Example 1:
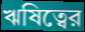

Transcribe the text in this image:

ঋষিত্বের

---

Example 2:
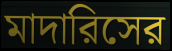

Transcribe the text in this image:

মাদারিসের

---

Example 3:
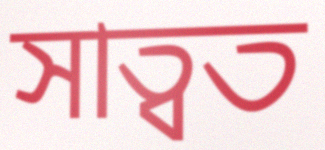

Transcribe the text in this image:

সাত্বত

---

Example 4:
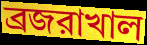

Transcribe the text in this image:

ব্রজরাখাল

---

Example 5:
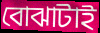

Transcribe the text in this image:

বোঝাটাই